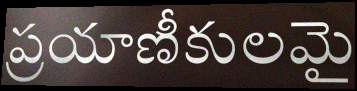
ప్రయాణీకులమై